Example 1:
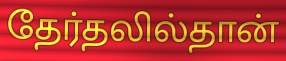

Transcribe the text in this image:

தேர்தலில்தான்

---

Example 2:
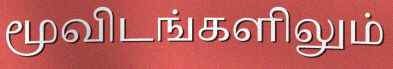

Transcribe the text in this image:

மூவிடங்களிலும்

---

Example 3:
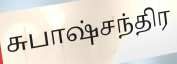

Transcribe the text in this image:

சுபாஷ்சந்திர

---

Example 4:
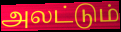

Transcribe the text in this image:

அலட்டும்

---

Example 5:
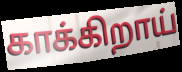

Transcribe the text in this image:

காக்கிறாய்